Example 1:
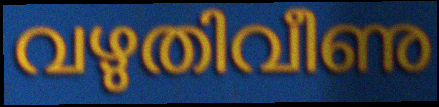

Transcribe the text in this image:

വഴുതിവീണു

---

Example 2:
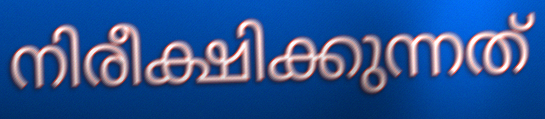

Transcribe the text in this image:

നിരീക്ഷിക്കുന്നത്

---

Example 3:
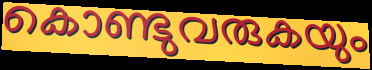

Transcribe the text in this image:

കൊണ്ടുവരുകയും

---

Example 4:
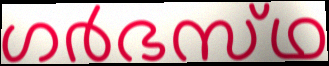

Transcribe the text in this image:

ഗർഭസ്‌ഥ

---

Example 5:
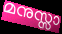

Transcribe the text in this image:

മനുസ്സാ